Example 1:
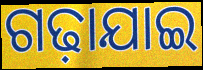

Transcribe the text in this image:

ଗଢ଼ାଯାଇ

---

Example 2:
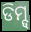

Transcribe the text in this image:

ଡିମ୍ଡ୍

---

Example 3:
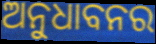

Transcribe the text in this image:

ଅନୁଧାବନର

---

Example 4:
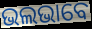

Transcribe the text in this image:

ଭଲଭାବେ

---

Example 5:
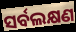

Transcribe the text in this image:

ସର୍ବଲକ୍ଷଣ